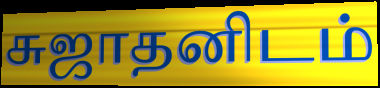
சுஜாதனிடம்